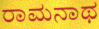
ರಾಮನಾಥ